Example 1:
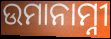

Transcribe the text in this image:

ଉମାନାମ୍ନୀ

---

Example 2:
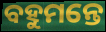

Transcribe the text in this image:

ବହୁମନ୍ତେ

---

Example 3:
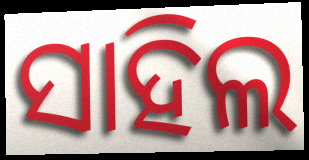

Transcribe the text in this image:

ସାହିଲ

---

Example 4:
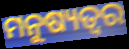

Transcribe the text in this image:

ମନୁଷ୍ୟତ୍ବର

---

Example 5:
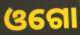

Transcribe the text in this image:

ଓଗୋ